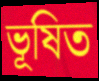
ভূষিত